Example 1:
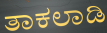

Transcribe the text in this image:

ತಾಕಲಾಡಿ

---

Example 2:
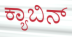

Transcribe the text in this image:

ಕ್ಯಾಬಿನ್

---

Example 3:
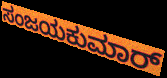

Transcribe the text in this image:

ಸಂಜಯಕುಮಾರ್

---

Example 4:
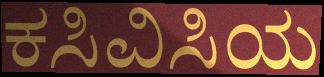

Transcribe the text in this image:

ಕಸಿವಿಸಿಯ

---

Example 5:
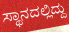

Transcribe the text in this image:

ಸ್ಥಾನದಲ್ಲಿದ್ದು